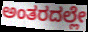
ಅಂತರದಲ್ಲೇ